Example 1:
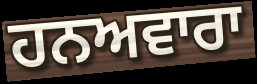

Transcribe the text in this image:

ਹਨਅਵਾਰਾ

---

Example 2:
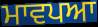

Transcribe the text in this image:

ਮਾਵਪਆ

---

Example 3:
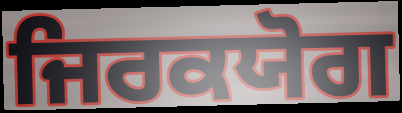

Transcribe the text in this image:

ਜਿਰਕਯੋਗ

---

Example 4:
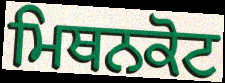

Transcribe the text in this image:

ਮਿਥਨਕੋਟ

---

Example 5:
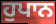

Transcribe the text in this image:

ਹੁਪਾਨ